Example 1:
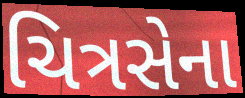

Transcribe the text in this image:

ચિત્રસેના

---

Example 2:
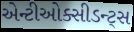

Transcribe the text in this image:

એન્ટીઓક્સીડન્ટ્સ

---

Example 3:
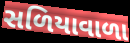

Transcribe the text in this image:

સળિયાવાળા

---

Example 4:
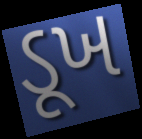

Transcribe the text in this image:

ડૂખ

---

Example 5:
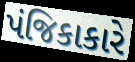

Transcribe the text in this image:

પંજિકાકારે